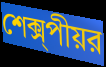
শেক্স্পীয়র